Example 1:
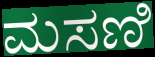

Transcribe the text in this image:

ಮಸಣಿ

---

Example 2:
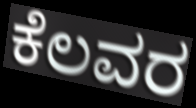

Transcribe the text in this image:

ಕೆಲವರ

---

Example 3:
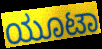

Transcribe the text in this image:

ಯೂಟಾ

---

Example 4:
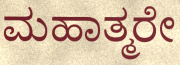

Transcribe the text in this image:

ಮಹಾತ್ಮರೇ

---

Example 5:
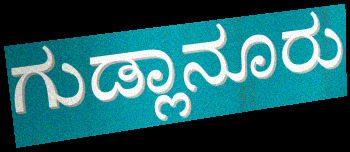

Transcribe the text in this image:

ಗುಡ್ಲಾನೂರು